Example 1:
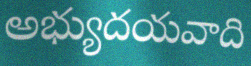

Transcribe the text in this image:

అభ్యుదయవాది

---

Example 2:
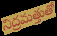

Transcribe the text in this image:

నిద్రమత్తుతో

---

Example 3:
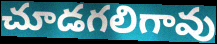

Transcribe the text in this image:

చూడగలిగావు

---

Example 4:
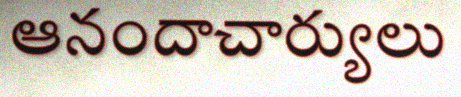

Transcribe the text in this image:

ఆనందాచార్యులు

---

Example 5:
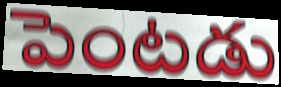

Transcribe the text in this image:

పెంటడు